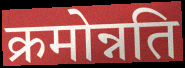
क्रमोन्नति